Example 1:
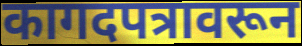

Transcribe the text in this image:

कागदपत्रावरून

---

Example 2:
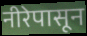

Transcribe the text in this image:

नीरेपासून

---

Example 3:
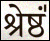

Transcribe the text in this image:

श्रेष्ठं॑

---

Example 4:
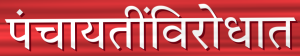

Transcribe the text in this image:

पंचायतींविरोधात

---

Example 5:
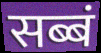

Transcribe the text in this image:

सब्बं